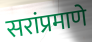
सरांप्रमाणे